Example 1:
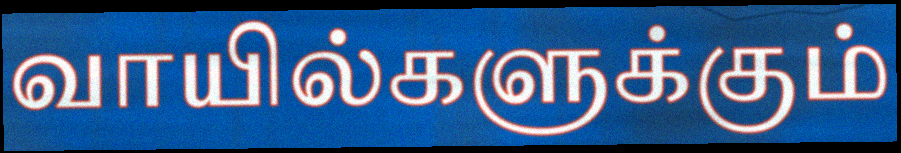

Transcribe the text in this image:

வாயில்களுக்கும்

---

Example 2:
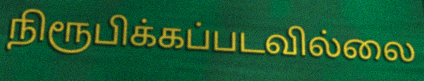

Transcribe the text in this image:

நிரூபிக்கப்படவில்லை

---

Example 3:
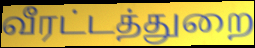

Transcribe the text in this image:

வீரட்டத்துறை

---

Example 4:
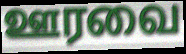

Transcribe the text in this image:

ஊரவை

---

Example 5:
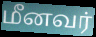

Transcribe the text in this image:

மீனவர்